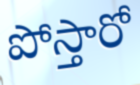
పోస్తారో